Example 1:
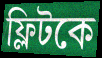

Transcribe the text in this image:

ফ্লিটকে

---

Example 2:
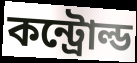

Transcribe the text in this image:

কন্ট্রোল্ড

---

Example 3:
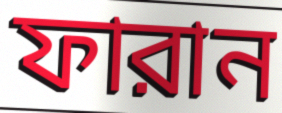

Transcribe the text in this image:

ফারান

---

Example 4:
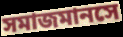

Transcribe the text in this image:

সমাজমানসে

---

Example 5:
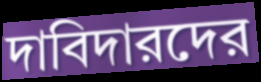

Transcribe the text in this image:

দাবিদারদের